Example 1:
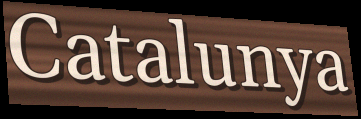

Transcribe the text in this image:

Catalunya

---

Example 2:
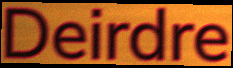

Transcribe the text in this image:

Deirdre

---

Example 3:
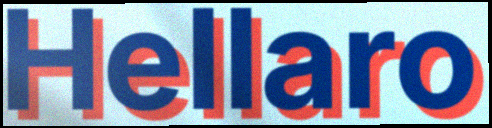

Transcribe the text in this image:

Hellaro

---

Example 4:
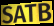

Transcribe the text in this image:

SATB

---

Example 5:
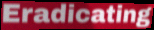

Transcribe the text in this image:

Eradicating